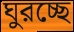
ঘুরচ্ছে